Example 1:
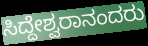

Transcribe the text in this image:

ಸಿದ್ದೇಶ್ವರಾನಂದರು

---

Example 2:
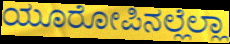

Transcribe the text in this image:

ಯೂರೋಪಿನಲ್ಲೆಲ್ಲಾ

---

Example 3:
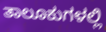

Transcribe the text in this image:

ತಾಲೂಕುಗಳಲ್ಲಿ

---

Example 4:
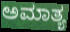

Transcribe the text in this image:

ಅಮಾತ್ಯ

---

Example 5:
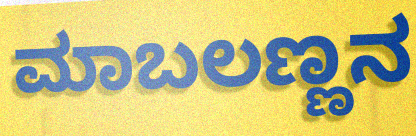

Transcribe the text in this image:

ಮಾಬಲಣ್ಣನ